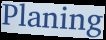
Planing